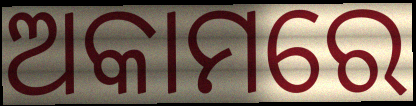
ଅକାମରେ